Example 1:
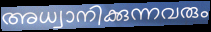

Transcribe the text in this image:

അധ്വാനിക്കുന്നവരും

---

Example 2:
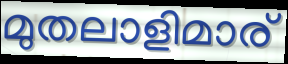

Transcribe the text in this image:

മുതലാളിമാര്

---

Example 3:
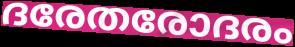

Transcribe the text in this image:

ദരേതരോദരം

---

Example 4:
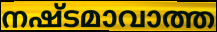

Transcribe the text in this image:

നഷ്ടമാവാത്ത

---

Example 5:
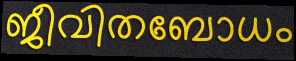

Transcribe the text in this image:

ജീവിതബോധം